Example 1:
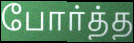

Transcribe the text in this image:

போர்த்த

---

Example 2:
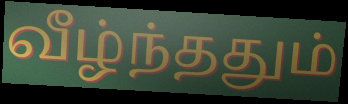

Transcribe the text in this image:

வீழ்ந்ததும்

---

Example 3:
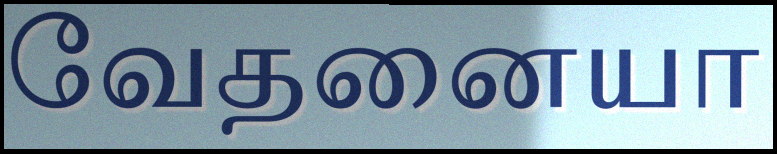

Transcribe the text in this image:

வேதனையா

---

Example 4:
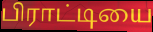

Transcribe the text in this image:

பிராட்டியை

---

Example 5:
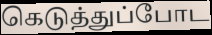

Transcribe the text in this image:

கெடுத்துப்போட